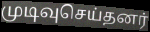
முடிவுசெய்தனர்